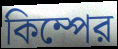
কিম্পের